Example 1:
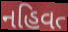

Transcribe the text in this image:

નહિવત્‍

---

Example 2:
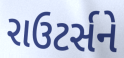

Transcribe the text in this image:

રાઉટર્સને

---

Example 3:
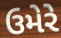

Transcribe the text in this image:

ઉમેરે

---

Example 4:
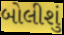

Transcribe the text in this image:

બોલીશું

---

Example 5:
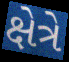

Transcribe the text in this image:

ક્ષેત્રે